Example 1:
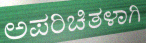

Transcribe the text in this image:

ಅಪರಿಚಿತಳಾಗಿ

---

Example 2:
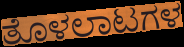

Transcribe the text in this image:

ತೊಳಲಾಟಗಳ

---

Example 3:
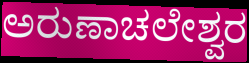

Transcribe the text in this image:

ಅರುಣಾಚಲೇಶ್ವರ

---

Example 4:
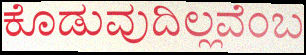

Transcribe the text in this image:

ಕೊಡುವುದಿಲ್ಲವೆಂಬ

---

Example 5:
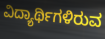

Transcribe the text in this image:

ವಿದ್ಯಾರ್ಥಿಗಳಿರುವ